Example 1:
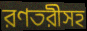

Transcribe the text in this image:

রণতরীসহ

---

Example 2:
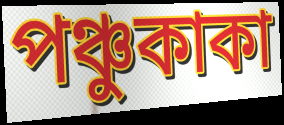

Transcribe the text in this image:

পঞ্চুকাকা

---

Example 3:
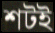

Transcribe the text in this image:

শটই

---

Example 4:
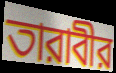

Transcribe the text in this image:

তারাবীর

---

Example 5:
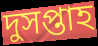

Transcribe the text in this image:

দুসপ্তাহ